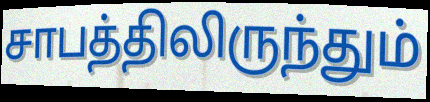
சாபத்திலிருந்தும்